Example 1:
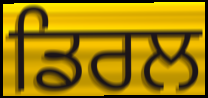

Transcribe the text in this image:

ਡਿਰਲ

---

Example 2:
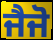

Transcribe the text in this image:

ਜੈਜੋ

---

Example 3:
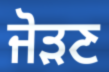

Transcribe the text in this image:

ਜੋੜਣ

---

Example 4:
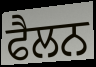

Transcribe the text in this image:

ਫੈਲਨ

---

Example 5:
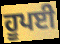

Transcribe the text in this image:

ਹੂਪਈ